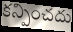
కన్పించదు